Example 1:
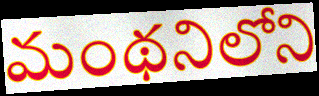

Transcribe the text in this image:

మంథనిలోని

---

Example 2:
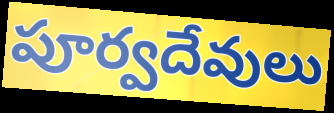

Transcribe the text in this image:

పూర్వదేవులు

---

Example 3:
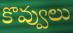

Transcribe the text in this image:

కొవ్వులు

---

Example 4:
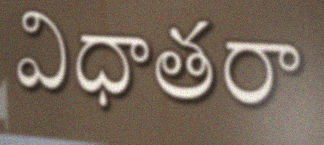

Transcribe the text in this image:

విధాతరా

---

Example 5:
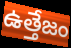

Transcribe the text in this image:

ఉత్తేజం